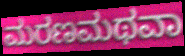
ಮರಣಮಥವಾ